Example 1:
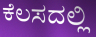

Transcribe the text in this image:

ಕೆಲಸದಲ್ಲಿ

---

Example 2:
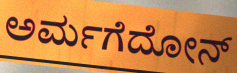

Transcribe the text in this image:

ಅರ್ಮಗೆದೋನ್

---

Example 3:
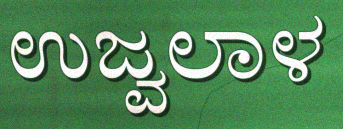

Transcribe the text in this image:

ಉಜ್ವಲಾಳ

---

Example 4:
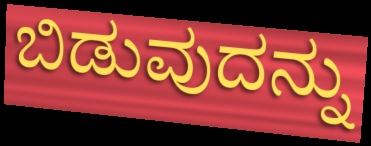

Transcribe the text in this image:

ಬಿಡುವುದನ್ನು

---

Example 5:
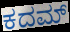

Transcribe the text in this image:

ಕದಮ್